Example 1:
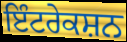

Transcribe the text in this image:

ਇੰਟਰੇਕਸ਼ਨ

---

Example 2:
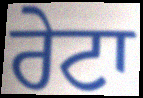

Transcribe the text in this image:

ਰੇਟਾ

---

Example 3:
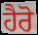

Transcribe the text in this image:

ਹੈਰੋ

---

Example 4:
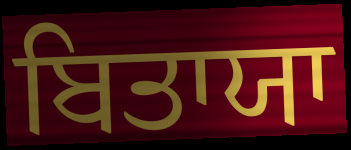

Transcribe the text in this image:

ਬਿਤਾਯਾ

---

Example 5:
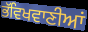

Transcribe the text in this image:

ਭੱਵਿਖਵਾਣੀਆਂ